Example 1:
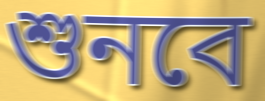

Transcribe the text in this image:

শুনবে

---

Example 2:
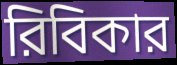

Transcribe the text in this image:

রিবিকার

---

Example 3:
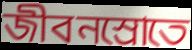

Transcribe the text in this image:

জীবনস্রোতে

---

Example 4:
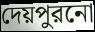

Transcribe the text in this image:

দেয়পুরনো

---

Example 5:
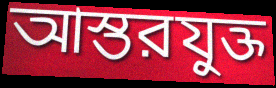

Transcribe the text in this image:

আস্তরযুক্ত